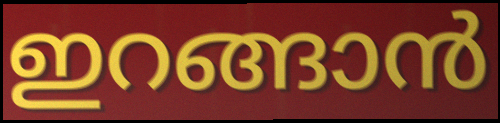
ഇറങ്ങാൻ